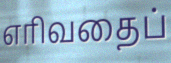
எரிவதைப்